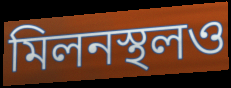
মিলনস্থলও